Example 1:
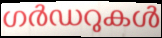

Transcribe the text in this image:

ഗർഡറുകൾ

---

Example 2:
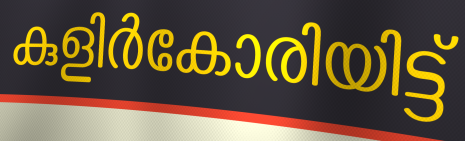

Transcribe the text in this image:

കുളിർകോരിയിട്ട്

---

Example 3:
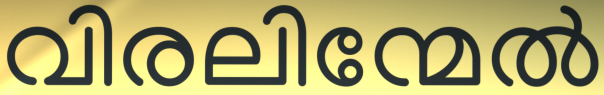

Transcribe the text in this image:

വിരലിന്മേൽ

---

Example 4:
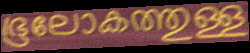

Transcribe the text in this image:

ഭൂലോകത്തുള്ള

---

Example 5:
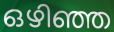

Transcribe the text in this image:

ഒഴിഞ്ഞ